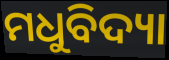
ମଧୁବିଦ୍ୟା